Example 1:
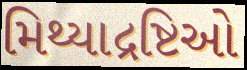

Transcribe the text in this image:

મિથ્યાદ્રષ્ટિઓ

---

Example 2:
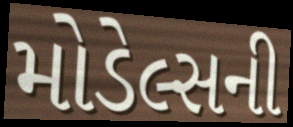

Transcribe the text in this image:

મોડેલ્સની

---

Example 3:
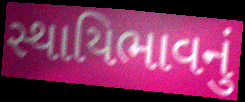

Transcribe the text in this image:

સ્થાયિભાવનું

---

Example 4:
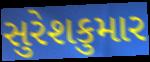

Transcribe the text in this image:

સુરેશકુમાર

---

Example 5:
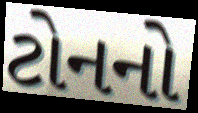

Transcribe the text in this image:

ટોનનો